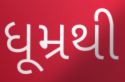
ધૂમ્રથી